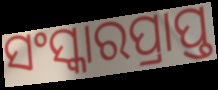
ସଂସ୍କାରପ୍ରାପ୍ତ